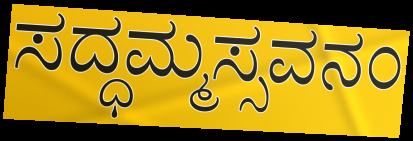
ಸದ್ಧಮ್ಮಸ್ಸವನಂ